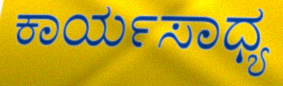
ಕಾರ್ಯಸಾಧ್ಯ